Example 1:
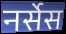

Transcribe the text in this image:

नर्सेस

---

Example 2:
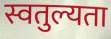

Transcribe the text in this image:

स्वतुल्यता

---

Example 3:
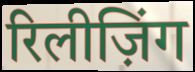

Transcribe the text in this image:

रिलीज़िंग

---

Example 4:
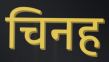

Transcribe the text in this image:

चिनह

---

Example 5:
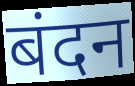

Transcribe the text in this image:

बंदन